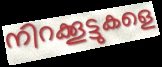
നിറക്കൂട്ടുകളെ